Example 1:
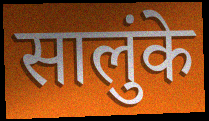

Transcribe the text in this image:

सालुंके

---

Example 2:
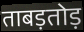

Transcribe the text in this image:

ताबड़तोड़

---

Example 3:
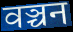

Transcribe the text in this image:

वञ्चन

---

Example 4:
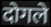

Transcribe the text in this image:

दोगले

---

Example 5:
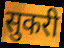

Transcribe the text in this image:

सुकरी